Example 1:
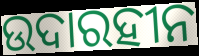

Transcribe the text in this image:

ଉଦାରହୀନ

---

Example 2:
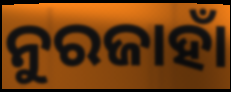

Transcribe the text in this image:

ନୁରଜାହାଁ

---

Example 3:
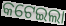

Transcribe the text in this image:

କଟେଇଲା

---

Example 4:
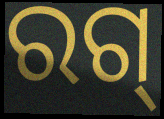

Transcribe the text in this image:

ରଗ୍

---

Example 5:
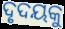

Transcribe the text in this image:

ଦୃଦୟକୁ